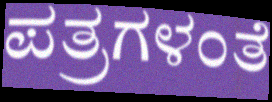
ಪತ್ರಗಳಂತೆ